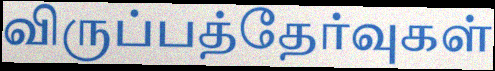
விருப்பத்தேர்வுகள்